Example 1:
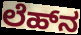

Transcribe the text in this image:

ಲೆಹ್‌ನ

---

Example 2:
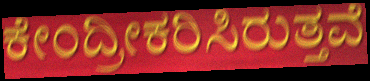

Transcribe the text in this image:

ಕೇಂದ್ರೀಕರಿಸಿರುತ್ತವೆ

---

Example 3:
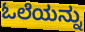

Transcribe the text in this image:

ಓಲೆಯನ್ನು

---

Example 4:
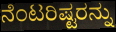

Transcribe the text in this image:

ನೆಂಟರಿಷ್ಟರನ್ನು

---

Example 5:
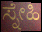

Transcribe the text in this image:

ಸ್ನೇಹಿ